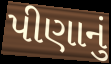
પીણાનું